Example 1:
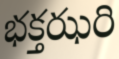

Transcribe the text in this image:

భక్తఝరి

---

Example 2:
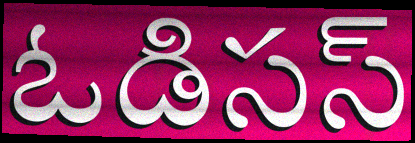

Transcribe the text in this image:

ఓడిసస్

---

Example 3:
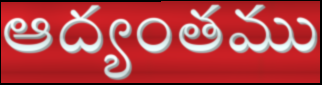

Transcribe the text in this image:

ఆద్యంతము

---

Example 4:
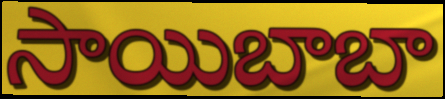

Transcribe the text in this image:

సాయిబాబా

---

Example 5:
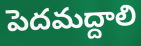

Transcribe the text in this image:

పెదమద్దాలి